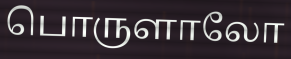
பொருளாலோ